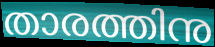
താരത്തിനു